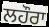
ਲਹੌਰਾ